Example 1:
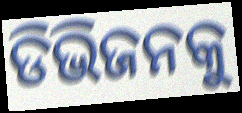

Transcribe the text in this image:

ଡିଭିଜନକୁ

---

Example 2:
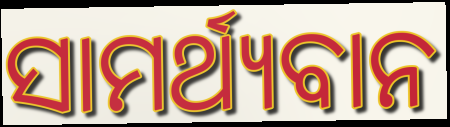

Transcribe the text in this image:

ସାମର୍ଥ୍ୟବାନ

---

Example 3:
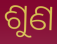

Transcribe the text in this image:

ଶୁଣ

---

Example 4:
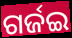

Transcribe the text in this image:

ଗର୍ଜଇ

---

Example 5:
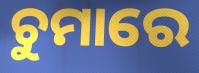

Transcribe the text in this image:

ଚୁମାରେ